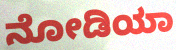
ನೋಡಿಯಾ